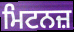
ਮਿਟਨਜ਼